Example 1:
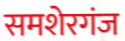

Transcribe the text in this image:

समशेरगंज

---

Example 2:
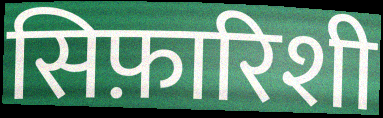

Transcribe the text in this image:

सिफ़ारिशी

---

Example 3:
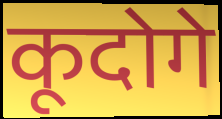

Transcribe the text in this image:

कूदोगे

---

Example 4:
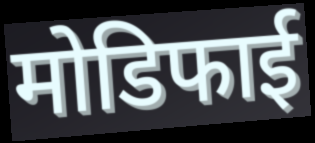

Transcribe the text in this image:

मोडिफाई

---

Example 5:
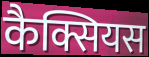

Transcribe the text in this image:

कैक्सियस